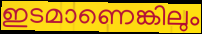
ഇടമാണെങ്കിലും